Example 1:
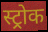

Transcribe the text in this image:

स्ट्रोक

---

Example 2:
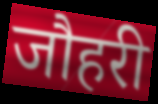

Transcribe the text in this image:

जौहरी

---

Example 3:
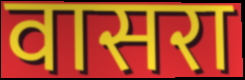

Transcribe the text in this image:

वासरा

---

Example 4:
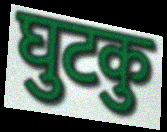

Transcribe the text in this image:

घुटकु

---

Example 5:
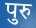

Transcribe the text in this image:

पुरु